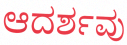
ಆದರ್ಶವು